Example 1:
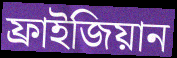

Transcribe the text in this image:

ফ্রাইজিয়ান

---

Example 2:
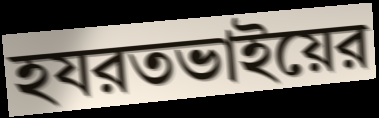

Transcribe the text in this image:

হযরতভাইয়ের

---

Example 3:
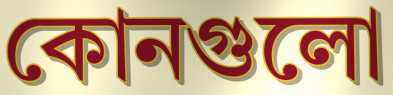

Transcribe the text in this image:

কোনগুলো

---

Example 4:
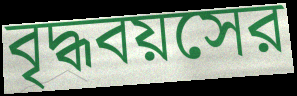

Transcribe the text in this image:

বৃদ্ধবয়সের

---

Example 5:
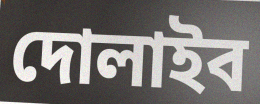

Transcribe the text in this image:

দোলাইব